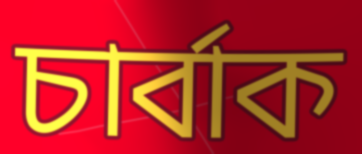
চার্বাক